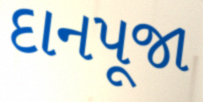
દાનપૂજા